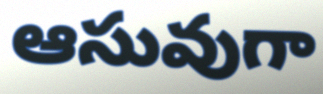
ఆసువుగా